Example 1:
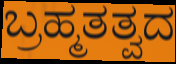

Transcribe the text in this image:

ಬ್ರಹ್ಮತತ್ವದ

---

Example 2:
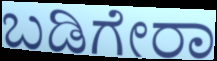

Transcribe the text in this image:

ಬಡಿಗೇರಾ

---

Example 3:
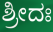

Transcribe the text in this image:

ಶ್ರೀದಃ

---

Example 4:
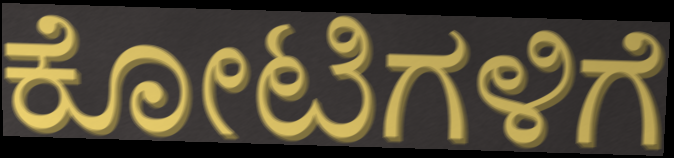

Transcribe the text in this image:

ಕೋಟಿಗಳಿಗೆ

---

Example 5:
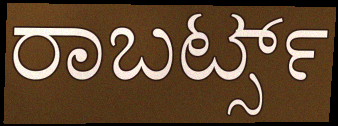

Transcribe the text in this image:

ರಾಬರ್ಟ್ಸ್